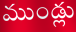
ముండ్లు